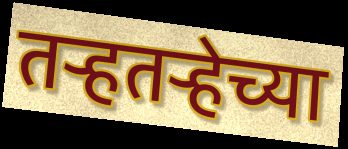
तऱ्हतऱ्हेच्या